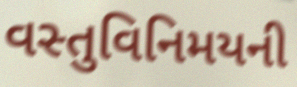
વસ્તુવિનિમયની